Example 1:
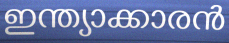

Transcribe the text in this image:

ഇന്ത്യാക്കാരൻ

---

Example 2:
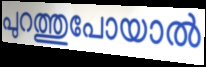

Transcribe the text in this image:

പുറത്തുപോയാൽ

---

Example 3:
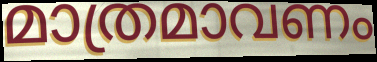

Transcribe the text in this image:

മാത്രമാവണം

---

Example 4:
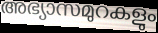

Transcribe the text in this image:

അഭ്യാസമുറകളും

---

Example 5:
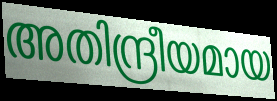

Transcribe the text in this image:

അതിന്ദ്രീയമായ